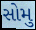
સોમુ